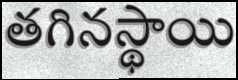
తగినస్థాయి